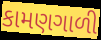
કામણગાળી